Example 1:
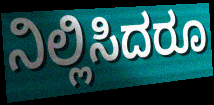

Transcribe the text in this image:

ನಿಲ್ಲಿಸಿದರೂ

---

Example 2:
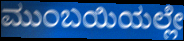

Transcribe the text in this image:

ಮುಂಬಯಿಯಲ್ಲೇ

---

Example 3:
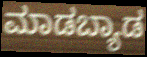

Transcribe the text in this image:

ಮಾಡಬ್ಯಾಡ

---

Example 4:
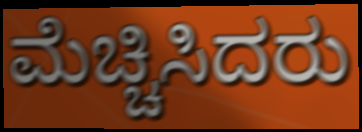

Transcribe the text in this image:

ಮೆಚ್ಚಿಸಿದರು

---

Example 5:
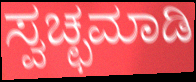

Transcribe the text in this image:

ಸ್ವಚ್ಛಮಾಡಿ